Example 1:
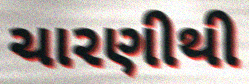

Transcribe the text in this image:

ચારણીથી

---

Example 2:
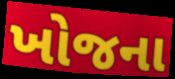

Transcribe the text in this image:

ખોજના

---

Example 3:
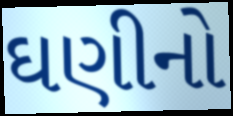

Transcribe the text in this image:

ઘણીનો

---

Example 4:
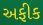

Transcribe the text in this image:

અફીક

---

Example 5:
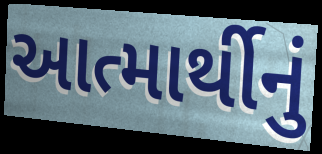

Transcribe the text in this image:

આત્માર્થીનું